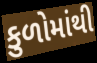
કુળોમાંથી